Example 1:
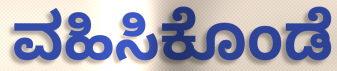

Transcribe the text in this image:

ವಹಿಸಿಕೊಂಡೆ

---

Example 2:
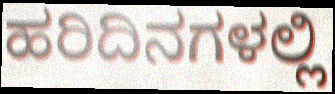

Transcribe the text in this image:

ಹರಿದಿನಗಳಲ್ಲಿ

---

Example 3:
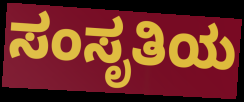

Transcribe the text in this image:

ಸಂಸೃತಿಯ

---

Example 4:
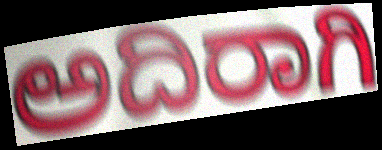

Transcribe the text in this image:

ಅದಿರಾಗಿ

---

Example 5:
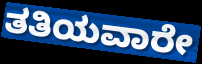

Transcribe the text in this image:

ತತಿಯವಾರೇ